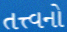
તત્ત્વનો